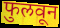
फुलवून